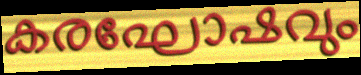
കരഘോഷവും